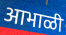
आभाळी